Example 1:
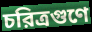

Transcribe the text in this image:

চরিত্রগুণে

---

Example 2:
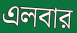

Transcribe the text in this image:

এলবার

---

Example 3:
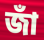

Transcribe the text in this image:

জাঁ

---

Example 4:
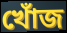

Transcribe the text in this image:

খোঁজ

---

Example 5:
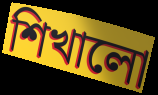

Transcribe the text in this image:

শিখালো